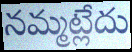
నమ్మట్లేదు